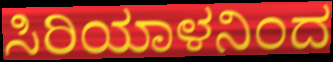
ಸಿರಿಯಾಳನಿಂದ